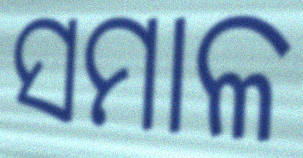
ସମାଳ